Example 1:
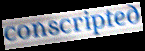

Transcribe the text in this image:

conscripted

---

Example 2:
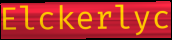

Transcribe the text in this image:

Elckerlyc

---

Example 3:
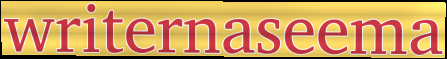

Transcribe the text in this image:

writernaseema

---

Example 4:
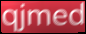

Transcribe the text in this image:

qjmed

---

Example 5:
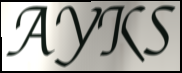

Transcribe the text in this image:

AYKS